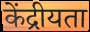
केंद्रीयता